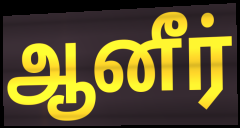
ஆனீர்